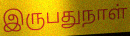
இருபதுநாள்